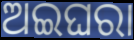
ଅଇଘରା